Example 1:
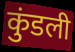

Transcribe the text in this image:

कुंडली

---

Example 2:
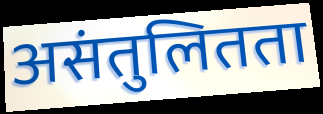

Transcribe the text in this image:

असंतुलितता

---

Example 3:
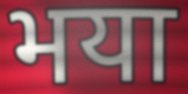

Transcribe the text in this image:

भया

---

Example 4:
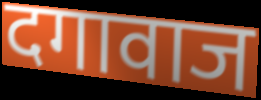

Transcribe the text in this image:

दगावाज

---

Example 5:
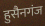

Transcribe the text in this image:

हुसैनगंज